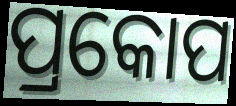
ପ୍ରକୋପ